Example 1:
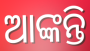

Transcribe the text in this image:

ଆଙ୍କନ୍ତି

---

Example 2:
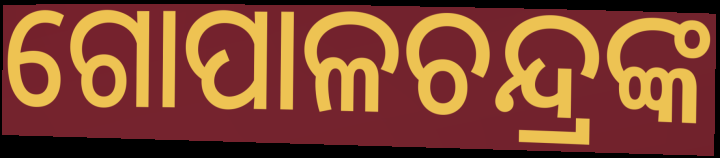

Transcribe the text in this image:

ଗୋପାଳଚନ୍ଦ୍ରଙ୍କ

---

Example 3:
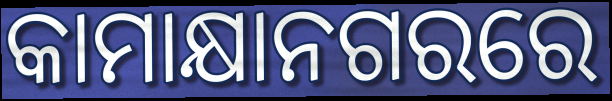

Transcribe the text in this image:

କାମାକ୍ଷାନଗରରେ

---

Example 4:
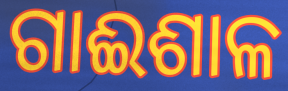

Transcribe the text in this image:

ଗାଈଶାଳ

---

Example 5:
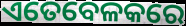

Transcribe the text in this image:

ଏତେବେଳକରେ